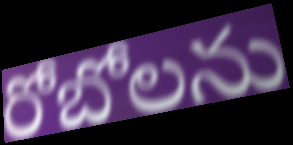
రోబోలను